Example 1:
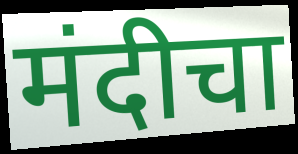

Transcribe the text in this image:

मंदीचा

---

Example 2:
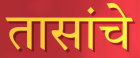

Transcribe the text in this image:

तासांचे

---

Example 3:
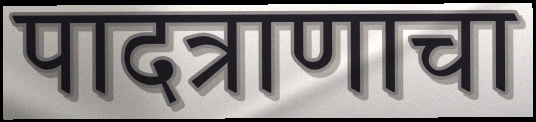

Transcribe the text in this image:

पादत्राणाचा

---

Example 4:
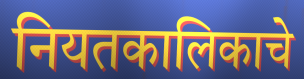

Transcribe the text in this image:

नियतकालिकाचे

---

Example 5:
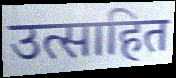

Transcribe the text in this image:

उत्साहित